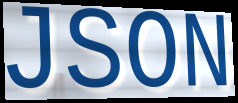
JSON